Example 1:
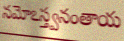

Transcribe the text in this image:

నమోఽస్త్వనంతాయ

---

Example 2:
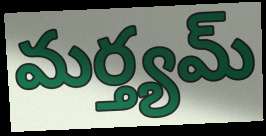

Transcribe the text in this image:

మర్త్యమ్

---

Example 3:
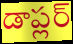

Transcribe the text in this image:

డాప్లర్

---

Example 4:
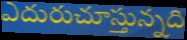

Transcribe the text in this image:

ఎదురుచూస్తున్నది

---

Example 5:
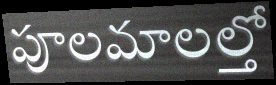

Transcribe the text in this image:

పూలమాలల్తో